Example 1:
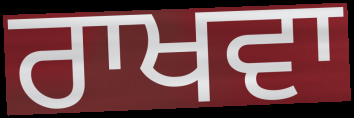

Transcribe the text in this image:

ਰਾਖਵਾ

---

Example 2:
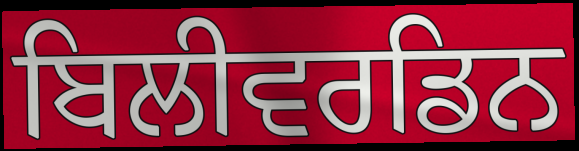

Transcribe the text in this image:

ਬਿਲੀਵਰਡਿਨ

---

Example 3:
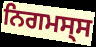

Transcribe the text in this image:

ਨਿਗਮਸ੍ਸ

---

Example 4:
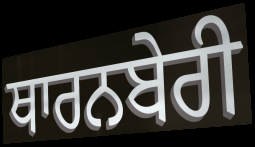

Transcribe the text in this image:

ਥਾਰਨਬੇਰੀ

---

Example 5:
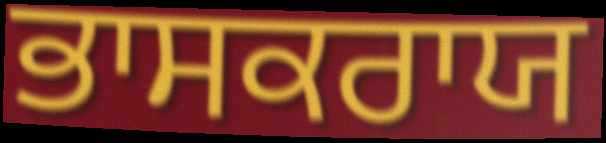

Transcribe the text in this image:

ਭਾਸਕਰਾਯ